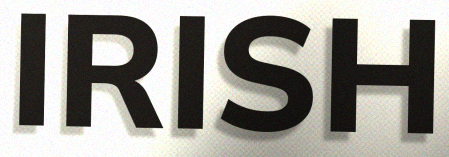
IRISH